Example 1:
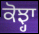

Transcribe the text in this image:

ਕੋਝ੍ਹਾ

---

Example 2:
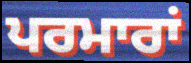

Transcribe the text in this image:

ਪਰਮਾਰਾਂ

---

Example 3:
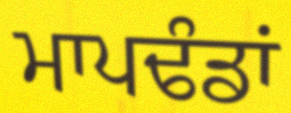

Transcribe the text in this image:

ਮਾਪਢੰਡਾਂ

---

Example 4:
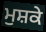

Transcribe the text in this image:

ਮੁਸ਼ਕੇ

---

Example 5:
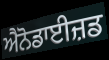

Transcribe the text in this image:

ਐਨੋਡਾਈਜ਼ਡ